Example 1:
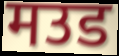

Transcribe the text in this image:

मउड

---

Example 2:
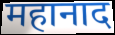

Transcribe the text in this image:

महानाद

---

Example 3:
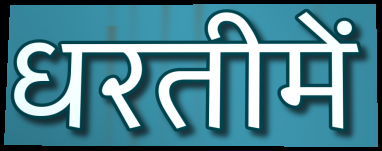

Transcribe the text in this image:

धरतीमें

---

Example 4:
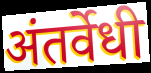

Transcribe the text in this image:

अंतर्वेधी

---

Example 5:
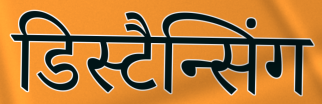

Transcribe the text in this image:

डिस्टैन्सिंग